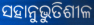
ସହାନୁଭୁତିଶୀଳ